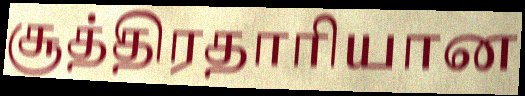
சூத்திரதாரியான